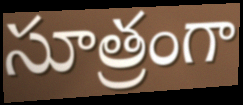
సూత్రంగా